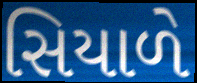
સિયાળે